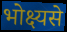
भोक्ष्यसे